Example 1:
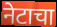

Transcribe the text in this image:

नेटाचा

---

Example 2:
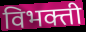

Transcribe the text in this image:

विभक्ती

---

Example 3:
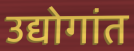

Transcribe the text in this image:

उद्योगांत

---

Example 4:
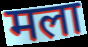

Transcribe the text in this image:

मला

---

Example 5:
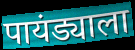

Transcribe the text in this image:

पायंड्याला